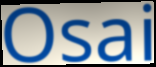
Osai